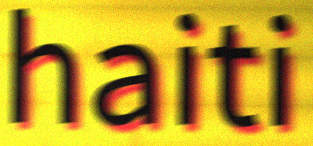
haiti